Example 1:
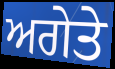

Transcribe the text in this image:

ਅਗੇਤੇ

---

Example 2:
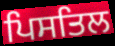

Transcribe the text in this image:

ਪਿਸਤਿਲ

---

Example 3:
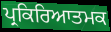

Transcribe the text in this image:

ਪ੍ਰਕਿਰਿਆਤਮਕ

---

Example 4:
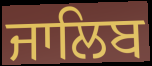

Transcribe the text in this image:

ਜਾਲਿਬ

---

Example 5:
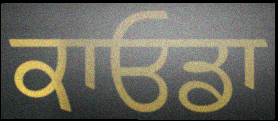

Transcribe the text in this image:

ਕਾਓਡਾ